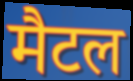
मैटल